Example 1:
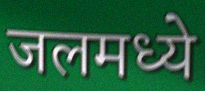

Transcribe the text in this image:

जलमध्ये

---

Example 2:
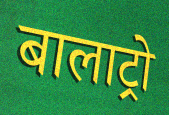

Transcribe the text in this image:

बालाट्रो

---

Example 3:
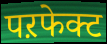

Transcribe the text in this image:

पऱफेक्ट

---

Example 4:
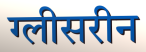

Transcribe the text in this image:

ग्लीसरीन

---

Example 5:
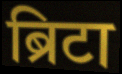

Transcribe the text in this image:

ब्रिटा